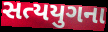
સત્યયુગના